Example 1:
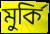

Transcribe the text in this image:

মুর্কি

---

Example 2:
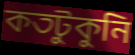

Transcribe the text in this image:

কতটুকুনি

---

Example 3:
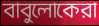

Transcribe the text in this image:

বাবুলোকেরা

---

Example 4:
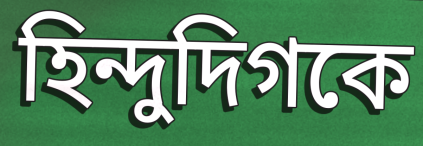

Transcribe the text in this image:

হিন্দুদিগকে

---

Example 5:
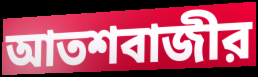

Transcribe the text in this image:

আতশবাজীর